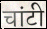
चांटी